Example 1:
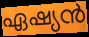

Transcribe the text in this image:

ഏഷ്യൻ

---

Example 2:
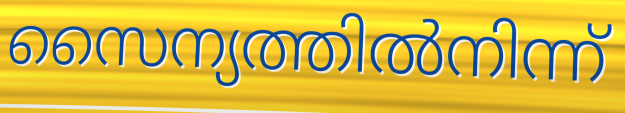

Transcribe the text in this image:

സൈന്യത്തിൽനിന്ന്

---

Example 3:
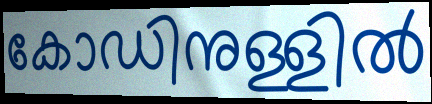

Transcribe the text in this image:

കോഡിനുള്ളിൽ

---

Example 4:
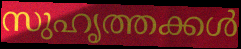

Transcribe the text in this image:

സുഹൃത്തക്കൾ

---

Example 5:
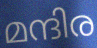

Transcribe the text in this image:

മന്ദിര